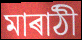
মাৰাঠী